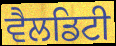
ਵੈਲਡਿਟੀ